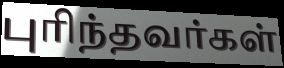
புரிந்தவர்கள்